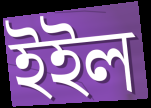
ইইল